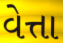
વેત્તા